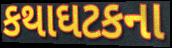
કથાઘટકના